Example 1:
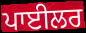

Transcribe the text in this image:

ਪਾਈਲਰ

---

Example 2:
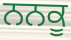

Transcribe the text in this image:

ਨਨਕੂ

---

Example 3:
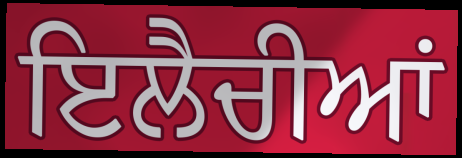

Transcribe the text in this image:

ਇਲੈਚੀਆਂ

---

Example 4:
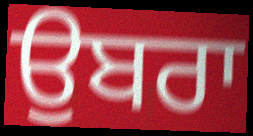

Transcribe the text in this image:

ਉਬਰਾ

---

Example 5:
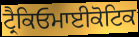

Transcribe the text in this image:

ਟ੍ਰੈਕਿਓਮਾਈਕੋਟਿਕ